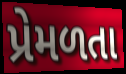
પ્રેમળતા